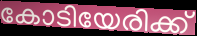
കോടിയേരിക്ക്